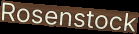
Rosenstock